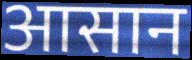
आसान